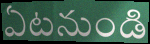
ఏటనుండి